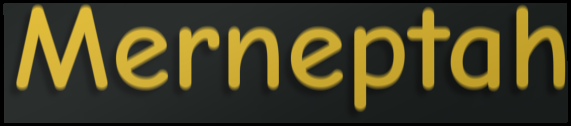
Merneptah